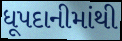
ધૂપદાનીમાંથી